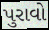
પુરાવો